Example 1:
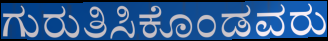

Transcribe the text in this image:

ಗುರುತಿಸಿಕೊಂಡವರು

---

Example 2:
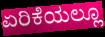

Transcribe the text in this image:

ಏರಿಕೆಯಲ್ಲೂ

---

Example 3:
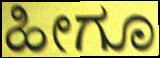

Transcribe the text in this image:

ಹೀಗೂ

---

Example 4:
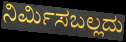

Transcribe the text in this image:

ನಿರ್ಮಿಸಬಲ್ಲದು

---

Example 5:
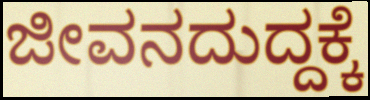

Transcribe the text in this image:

ಜೀವನದುದ್ದಕ್ಕೆ